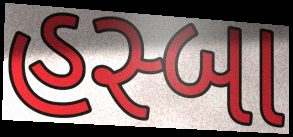
હસ્બા